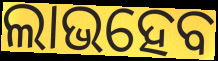
ଲାଭହେବ